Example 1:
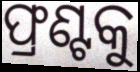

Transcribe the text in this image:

ଫ୍ରଣ୍ଟକୁ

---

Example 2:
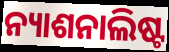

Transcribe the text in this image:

ନ୍ୟାଶନାଲିଷ୍ଟ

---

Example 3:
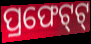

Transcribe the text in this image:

ପ୍ରଫେଟ୍‌ଟ୍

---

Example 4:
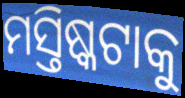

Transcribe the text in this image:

ମସ୍ତିଷ୍କଟାକୁ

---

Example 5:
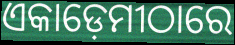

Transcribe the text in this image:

ଏକାଡ଼େମୀଠାରେ